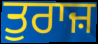
ਤੁਰਾਜ਼